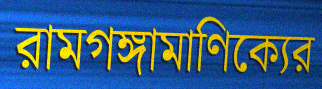
রামগঙ্গামাণিক্যের